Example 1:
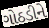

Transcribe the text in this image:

ગોઠડીને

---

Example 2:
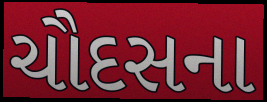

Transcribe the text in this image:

ચૌદસના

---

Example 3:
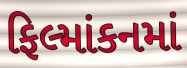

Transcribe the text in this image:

ફિલ્માંકનમાં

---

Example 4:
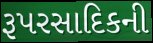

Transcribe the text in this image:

રૂપરસાદિકની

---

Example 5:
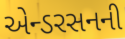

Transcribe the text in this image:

એન્ડરસનની